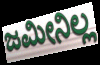
ಜಮೀನಿಲ್ಲ